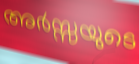
അർസ്സയുടെ